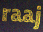
raaj